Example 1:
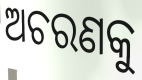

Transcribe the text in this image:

ଅଚରଣକୁ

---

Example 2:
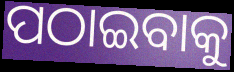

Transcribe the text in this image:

ପଠାଇବାକୁ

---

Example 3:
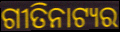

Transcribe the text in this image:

ଗୀତିନାଟ୍ୟର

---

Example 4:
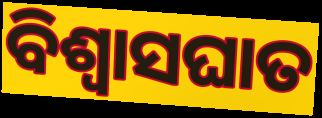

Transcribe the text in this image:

ବିଶ୍ବାସଘାତ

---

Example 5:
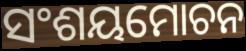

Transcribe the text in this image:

ସଂଶୟମୋଚନ